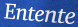
Entente